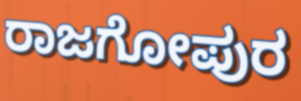
ರಾಜಗೋಪುರ